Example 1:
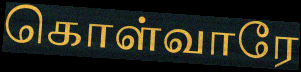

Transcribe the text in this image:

கொள்வாரே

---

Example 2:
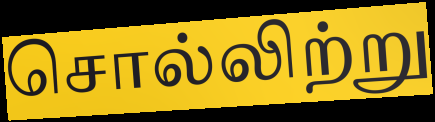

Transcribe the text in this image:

சொல்லிற்று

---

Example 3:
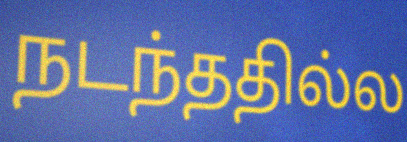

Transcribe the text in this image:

நடந்ததில்ல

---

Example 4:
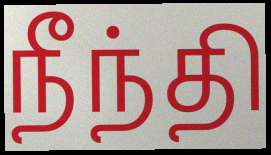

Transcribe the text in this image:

நீந்தி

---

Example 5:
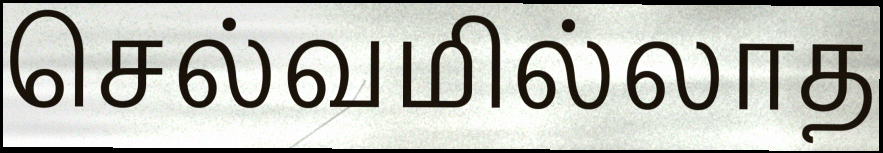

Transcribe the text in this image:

செல்வமில்லாத